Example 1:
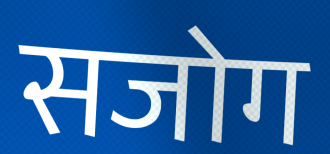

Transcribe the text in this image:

सजोग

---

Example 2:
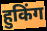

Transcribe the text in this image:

हुकिंग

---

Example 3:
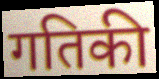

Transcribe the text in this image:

गतिकी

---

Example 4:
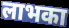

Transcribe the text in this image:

लाभका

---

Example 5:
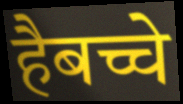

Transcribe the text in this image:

हैबच्चे